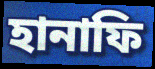
হানাফি